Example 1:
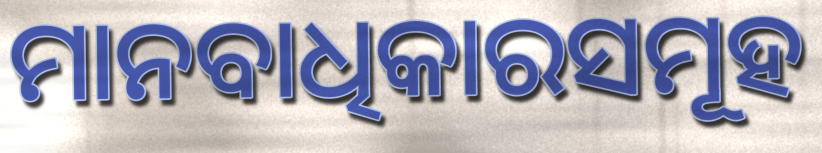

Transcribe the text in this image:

ମାନବାଧିକାରସମୂହ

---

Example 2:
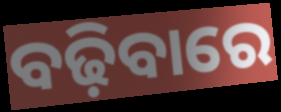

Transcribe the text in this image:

ବଢ଼ିବାରେ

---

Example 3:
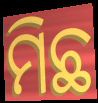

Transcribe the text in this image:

ମିଛ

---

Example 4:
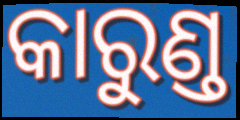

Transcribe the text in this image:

କାରୁଣ୍ଡ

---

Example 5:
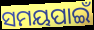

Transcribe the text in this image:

ସମୟପାଇଁ